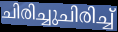
ചിരിച്ചുചിരിച്ച്